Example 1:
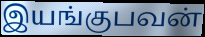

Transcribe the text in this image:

இயங்குபவன்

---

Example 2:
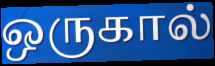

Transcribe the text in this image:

ஒருகால்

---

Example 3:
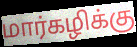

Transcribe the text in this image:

மார்கழிக்கு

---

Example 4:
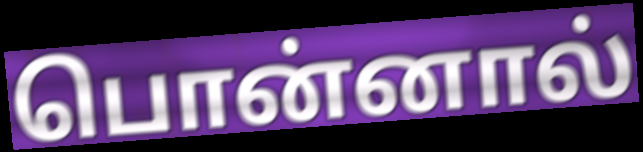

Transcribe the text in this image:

பொன்னால்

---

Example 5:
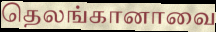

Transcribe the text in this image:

தெலங்கானாவை